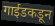
गाईडकडून